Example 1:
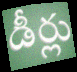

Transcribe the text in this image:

డీర్లు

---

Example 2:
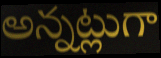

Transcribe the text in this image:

అన్నట్లుగా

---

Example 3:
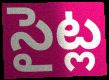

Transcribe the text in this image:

సైట్ల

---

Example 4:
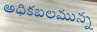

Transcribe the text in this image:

అధికబలమున్న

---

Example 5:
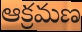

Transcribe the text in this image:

ఆక్రమణ